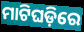
ମାଟିଘଡ଼ିରେ